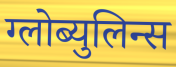
ग्लोब्युलिन्स